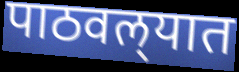
पाठवल्यात